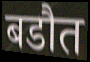
बडौत